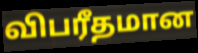
விபரீதமான